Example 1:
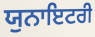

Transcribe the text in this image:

ਯੁਨਾਇਟਰੀ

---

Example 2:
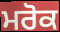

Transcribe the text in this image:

ਮਰੋਕ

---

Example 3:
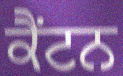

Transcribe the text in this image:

ਕੈਂਟਨ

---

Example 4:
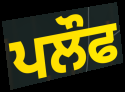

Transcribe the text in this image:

ਪਲੌਫ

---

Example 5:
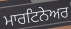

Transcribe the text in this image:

ਮਾਰਟਿਨੇਅਰ